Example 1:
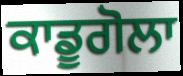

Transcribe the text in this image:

ਕਾਡੂਗੋਲਾ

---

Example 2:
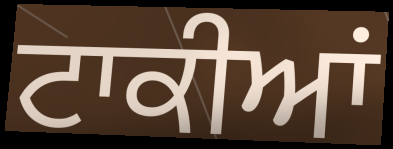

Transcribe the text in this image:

ਟਾਕੀਆਂ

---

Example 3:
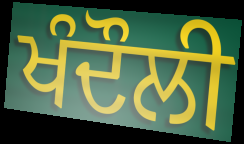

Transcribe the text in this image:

ਖੰਦੌਲੀ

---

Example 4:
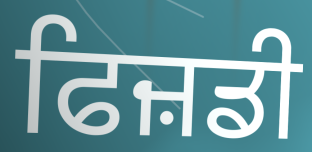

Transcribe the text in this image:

ਫਿਜ਼ਡੀ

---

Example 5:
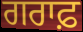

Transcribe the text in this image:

ਗਰਾਫ਼